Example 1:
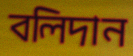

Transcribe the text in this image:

বলিদান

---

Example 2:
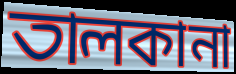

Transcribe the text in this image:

তালকানা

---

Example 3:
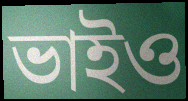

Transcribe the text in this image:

ভাইও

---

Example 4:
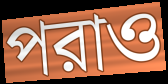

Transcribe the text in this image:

পরাও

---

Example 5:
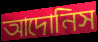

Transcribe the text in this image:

আদোনিস